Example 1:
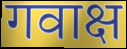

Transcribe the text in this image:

गवाक्ष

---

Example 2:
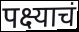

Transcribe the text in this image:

पक्ष्याचं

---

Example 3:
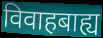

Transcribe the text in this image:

विवाहबाह्य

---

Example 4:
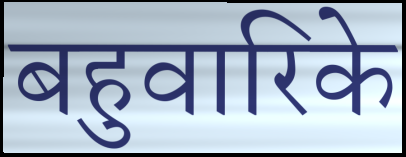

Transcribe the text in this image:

बहुवारिके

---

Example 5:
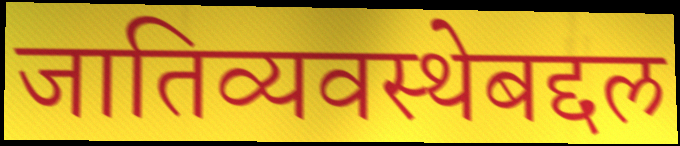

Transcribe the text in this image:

जातिव्यवस्थेबद्दल